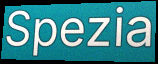
Spezia